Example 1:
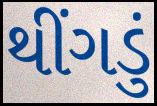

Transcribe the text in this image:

થીંગડું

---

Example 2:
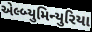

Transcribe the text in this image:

એલ્બ્યુમિન્યુરિયા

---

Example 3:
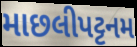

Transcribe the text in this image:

માછલીપટ્ટનમ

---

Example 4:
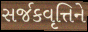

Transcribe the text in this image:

સર્જકવૃત્તિને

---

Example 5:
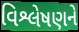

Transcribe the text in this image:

વિશ્લેષણને